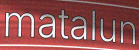
matalun